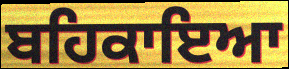
ਬਹਿਕਾਇਆ